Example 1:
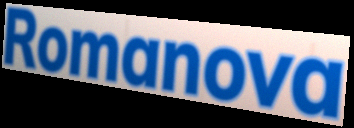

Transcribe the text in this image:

Romanova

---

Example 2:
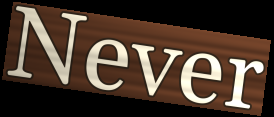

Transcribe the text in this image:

Never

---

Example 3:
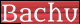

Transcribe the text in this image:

Bachu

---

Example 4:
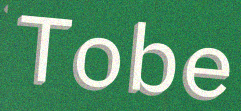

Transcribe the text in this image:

Tobe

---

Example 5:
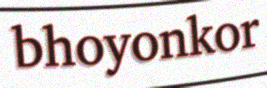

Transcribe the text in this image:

bhoyonkor